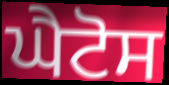
ਘੈਟੋਸ